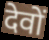
देवों